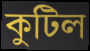
কুটিল